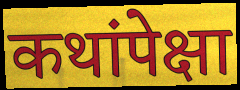
कथांपेक्षा